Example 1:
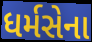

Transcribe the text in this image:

ધર્મસેના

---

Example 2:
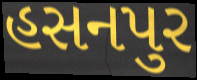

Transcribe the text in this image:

હસનપુર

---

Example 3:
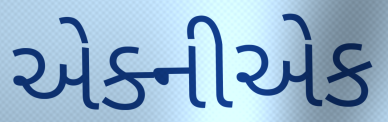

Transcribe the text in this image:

એક્નીએક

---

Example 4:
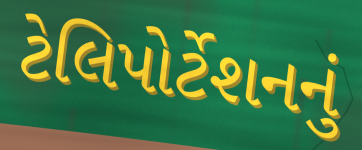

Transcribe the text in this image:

ટેલિપોર્ટેશનનું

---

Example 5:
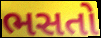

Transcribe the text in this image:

ભસતો